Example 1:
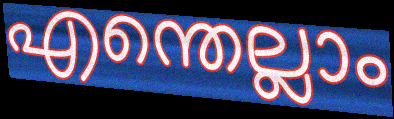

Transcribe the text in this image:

എന്തെല്ലാം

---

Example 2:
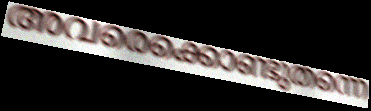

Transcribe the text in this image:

അവരെക്കൊണ്ടുതന്നെ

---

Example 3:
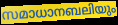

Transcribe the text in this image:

സമാധാനബലിയും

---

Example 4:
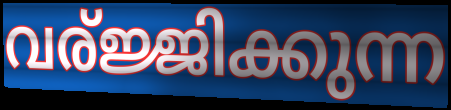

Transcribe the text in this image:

വര്ജ്ജിക്കുന്ന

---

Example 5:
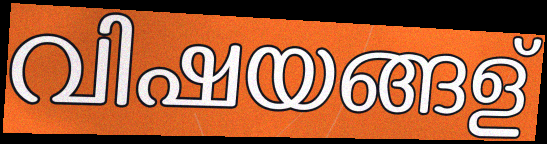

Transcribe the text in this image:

വിഷയങ്ങള്